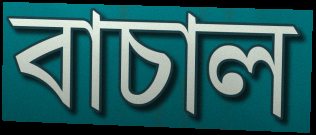
বাচাল